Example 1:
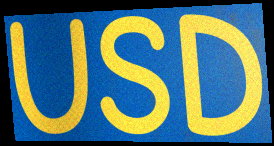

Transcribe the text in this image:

USD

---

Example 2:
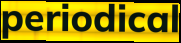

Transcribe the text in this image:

periodical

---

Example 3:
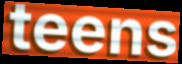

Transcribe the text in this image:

teens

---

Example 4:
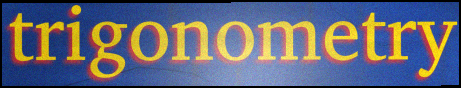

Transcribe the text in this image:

trigonometry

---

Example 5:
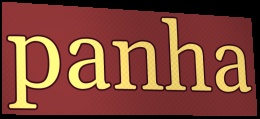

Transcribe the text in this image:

panha